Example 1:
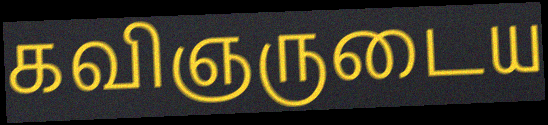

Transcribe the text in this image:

கவிஞருடைய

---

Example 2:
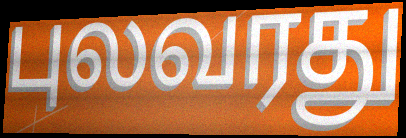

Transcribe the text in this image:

புலவரது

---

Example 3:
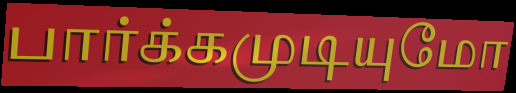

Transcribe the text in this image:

பார்க்கமுடியுமோ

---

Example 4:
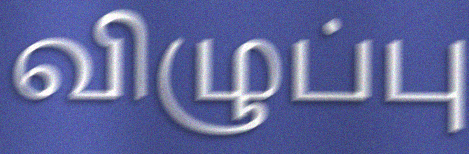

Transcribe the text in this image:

விழுப்பு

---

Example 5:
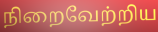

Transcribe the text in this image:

நிறைவேற்றிய